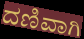
ದಣಿವಾಗಿ